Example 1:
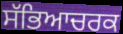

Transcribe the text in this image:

ਸੱਭਿਆਚਰਕ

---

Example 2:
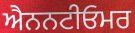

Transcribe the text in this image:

ਐਨਨਟੀਓਮਰ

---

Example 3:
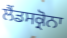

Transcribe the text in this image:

ਲੈਂਡਸਕ੍ਰੋਨਾ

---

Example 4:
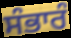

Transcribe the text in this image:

ਸੰਭਾਰੰ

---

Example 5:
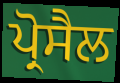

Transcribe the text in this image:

ਪ੍ਰੋਸੈਲ